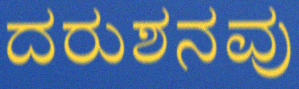
ದರುಶನವು